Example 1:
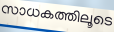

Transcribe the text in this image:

സാധകത്തിലൂടെ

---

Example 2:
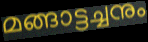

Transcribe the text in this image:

മങ്ങാട്ടച്ചനും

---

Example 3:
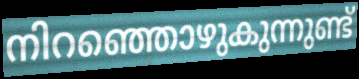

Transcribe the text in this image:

നിറഞ്ഞൊഴുകുന്നുണ്ട്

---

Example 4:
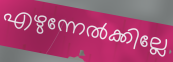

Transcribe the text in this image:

എഴുന്നേൽക്കില്ലേ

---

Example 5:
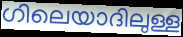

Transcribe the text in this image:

ഗിലെയാദിലുള്ള